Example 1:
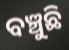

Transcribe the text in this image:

ବଞ୍ଚୁଛି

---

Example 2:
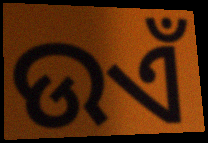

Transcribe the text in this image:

ଉଏଁ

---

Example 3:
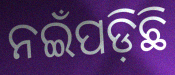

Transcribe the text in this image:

ନଇଁପଡ଼ିଛି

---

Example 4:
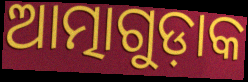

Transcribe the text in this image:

ଆତ୍ମାଗୁଡ଼ାକ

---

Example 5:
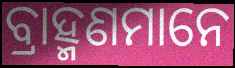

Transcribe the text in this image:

ବ୍ରାହ୍ମଣମାନେ